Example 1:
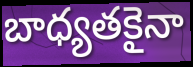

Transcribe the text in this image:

బాధ్యతకైనా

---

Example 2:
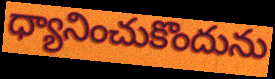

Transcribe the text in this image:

ధ్యానించుకొందును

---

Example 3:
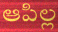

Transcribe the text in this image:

ఆపిల్ల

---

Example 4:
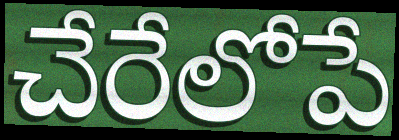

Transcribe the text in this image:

చేరేలోపే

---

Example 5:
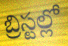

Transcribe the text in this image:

బ్రిస్టల్లో